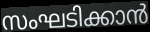
സംഘടിക്കാൻ